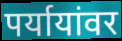
पर्यायांवर